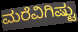
ಮರೆವಿಗಿಷ್ಟು